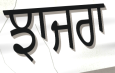
ਝਾਜਰਾ